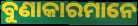
ବୁଣାକାରମାନେ